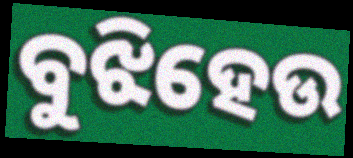
ବୁଝିହେଉ